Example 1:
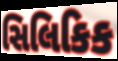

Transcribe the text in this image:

સિલિકિક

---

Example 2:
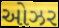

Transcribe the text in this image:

ઓઝર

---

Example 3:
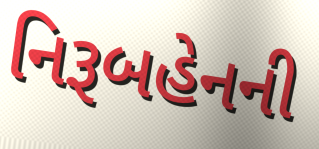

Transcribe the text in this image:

નિરૂબહેનની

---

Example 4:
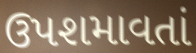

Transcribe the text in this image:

ઉપશમાવતાં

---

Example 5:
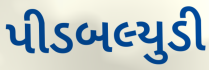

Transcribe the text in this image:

પીડબલ્યુડી